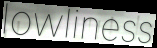
lowliness